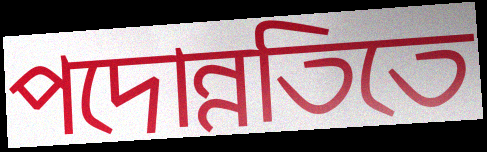
পদোন্নতিতে